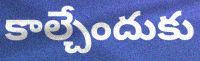
కాల్చేందుకు